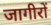
जागीरों